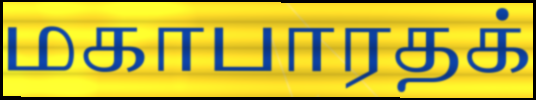
மகாபாரதக்